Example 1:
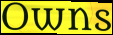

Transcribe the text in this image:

Owns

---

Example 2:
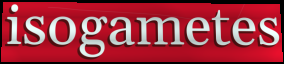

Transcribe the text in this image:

isogametes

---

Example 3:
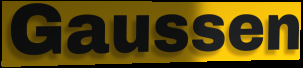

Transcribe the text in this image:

Gaussen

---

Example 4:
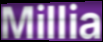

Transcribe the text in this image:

Millia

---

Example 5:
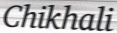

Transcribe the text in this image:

Chikhali